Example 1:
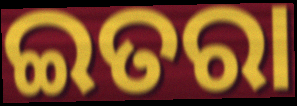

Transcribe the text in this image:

ଇତରା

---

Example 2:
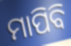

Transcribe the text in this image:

ମାପିବି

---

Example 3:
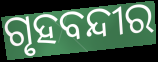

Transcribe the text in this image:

ଗୃହବନ୍ଦୀର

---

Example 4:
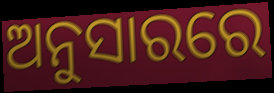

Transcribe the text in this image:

ଅନୁସାରରେ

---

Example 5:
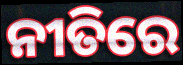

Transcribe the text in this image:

ନୀତିରେ